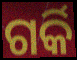
ଗର୍କି